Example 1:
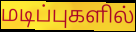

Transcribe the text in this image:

மடிப்புகளில்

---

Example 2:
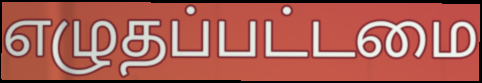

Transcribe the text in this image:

எழுதப்பட்டமை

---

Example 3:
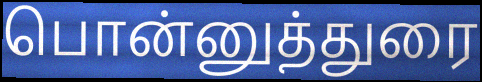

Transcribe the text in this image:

பொன்னுத்துரை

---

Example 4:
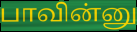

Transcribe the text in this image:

பாவின்னு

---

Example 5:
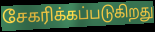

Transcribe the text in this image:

சேகரிக்கப்படுகிறது